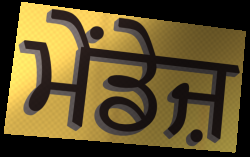
ਮੇਂਡੇਜ਼